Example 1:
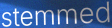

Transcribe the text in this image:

stemmed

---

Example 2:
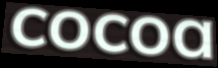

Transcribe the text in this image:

cocoa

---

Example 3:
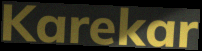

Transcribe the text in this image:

Karekar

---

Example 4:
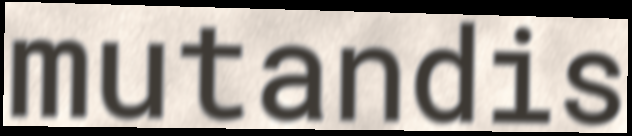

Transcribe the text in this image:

mutandis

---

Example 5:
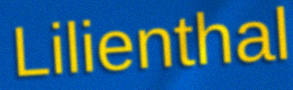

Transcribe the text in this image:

Lilienthal